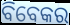
ବିବେକର